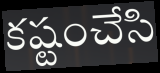
కష్టంచేసి